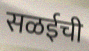
सळईची